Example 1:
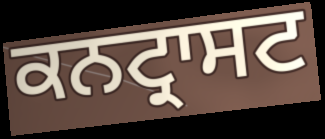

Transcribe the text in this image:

ਕਨਟ੍ਰਾਸਟ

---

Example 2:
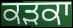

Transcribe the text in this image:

ਕੜਕਾ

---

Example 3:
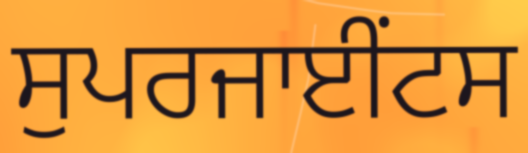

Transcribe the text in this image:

ਸੁਪਰਜਾਈਂਟਸ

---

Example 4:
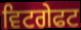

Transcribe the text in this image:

ਵਿਟਗੇਫਟ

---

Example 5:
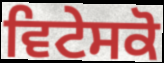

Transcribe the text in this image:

ਵਿਟੇਸਕੋ